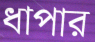
ধাপার